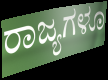
ರಾಜ್ಯಗಳೂ